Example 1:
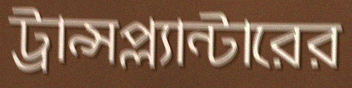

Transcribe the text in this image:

ট্রান্সপ্ল্যান্টারের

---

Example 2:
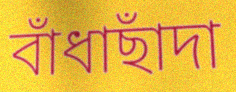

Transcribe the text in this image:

বাঁধাছাঁদা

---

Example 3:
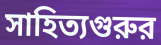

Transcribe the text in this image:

সাহিত্যগুরুর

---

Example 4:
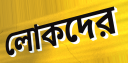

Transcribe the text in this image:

লোকদের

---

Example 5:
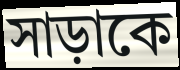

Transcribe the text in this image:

সাড়াকে